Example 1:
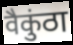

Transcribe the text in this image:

वैकुंठा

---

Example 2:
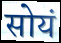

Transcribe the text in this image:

सोयं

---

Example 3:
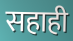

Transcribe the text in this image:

सहाही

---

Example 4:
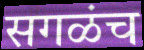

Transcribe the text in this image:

सगळंच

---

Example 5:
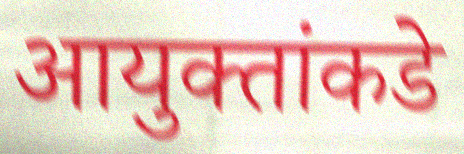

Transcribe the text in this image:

आयुक्तांकडे